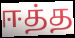
ஈத்த